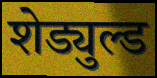
शेड्युल्ड